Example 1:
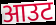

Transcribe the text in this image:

आउट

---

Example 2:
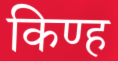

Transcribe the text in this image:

किण्ह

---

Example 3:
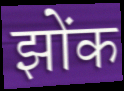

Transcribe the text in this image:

झोंक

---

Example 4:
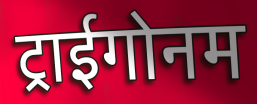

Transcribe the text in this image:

ट्राईगोनम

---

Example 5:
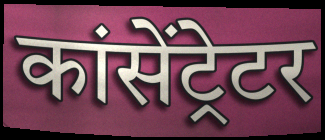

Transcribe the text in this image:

कांसेंट्रेटर